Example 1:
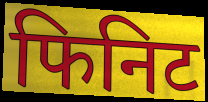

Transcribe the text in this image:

फिनिट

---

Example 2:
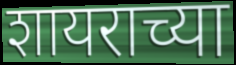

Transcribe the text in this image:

शायराच्या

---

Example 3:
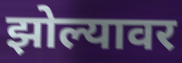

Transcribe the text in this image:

झोल्यावर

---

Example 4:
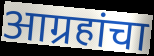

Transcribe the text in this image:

आग्रहांचा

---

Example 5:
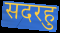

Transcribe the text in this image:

सदरहु